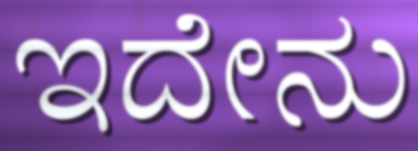
ಇದೇನು